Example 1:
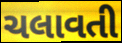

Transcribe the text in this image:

ચલાવતી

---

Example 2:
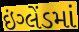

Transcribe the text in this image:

ઇંગ્લેંડમાં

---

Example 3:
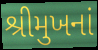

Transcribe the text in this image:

શ્રીમુખનાં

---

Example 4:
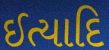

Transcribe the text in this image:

ઈત્યાદિ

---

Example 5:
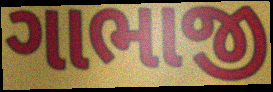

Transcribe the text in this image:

ગાભાજી